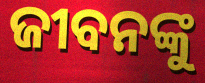
ଜୀବନଙ୍କୁ